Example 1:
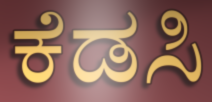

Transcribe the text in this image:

ಕೆಡಸಿ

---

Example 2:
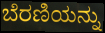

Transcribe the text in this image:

ಬೆರಣಿಯನ್ನು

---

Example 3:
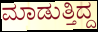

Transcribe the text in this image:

ಮಾಡುತ್ತಿದ್ದ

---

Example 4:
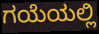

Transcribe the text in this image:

ಗಯೆಯಲ್ಲಿ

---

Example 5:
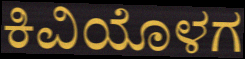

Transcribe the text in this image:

ಕಿವಿಯೊಳಗ